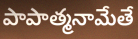
పాపాత్మనామేతే